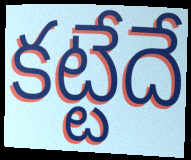
కట్టేదే